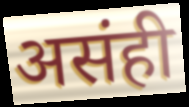
असंही